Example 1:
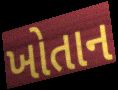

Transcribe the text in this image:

ખોતાન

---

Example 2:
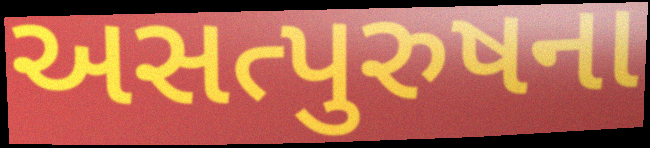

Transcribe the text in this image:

અસત્પુરુષના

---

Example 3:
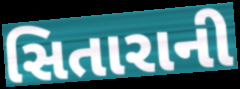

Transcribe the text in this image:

સિતારાની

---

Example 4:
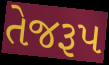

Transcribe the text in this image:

તેજરૂપ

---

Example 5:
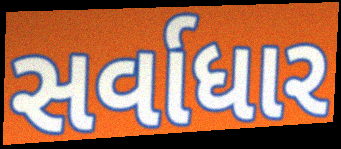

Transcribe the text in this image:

સર્વાધાર